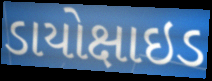
ડાયોક્ષાઇડ